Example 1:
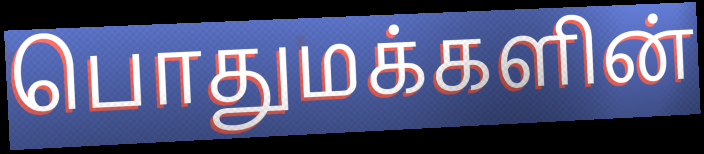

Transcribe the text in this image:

பொதுமக்களின்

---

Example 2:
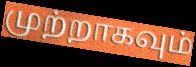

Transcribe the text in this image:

முற்றாகவும்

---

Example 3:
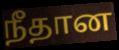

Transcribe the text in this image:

நீதான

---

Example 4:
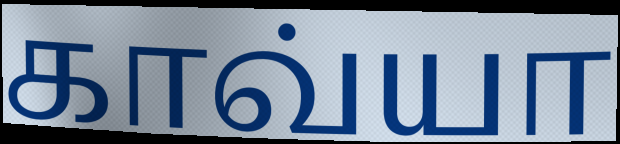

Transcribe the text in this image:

காவ்யா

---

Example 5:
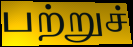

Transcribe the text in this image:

பற்றுச்